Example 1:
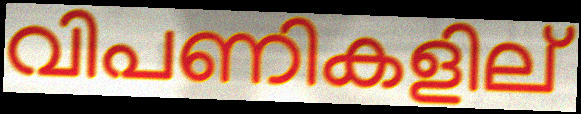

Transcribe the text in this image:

വിപണികളില്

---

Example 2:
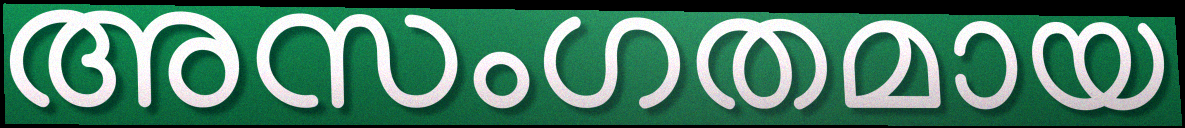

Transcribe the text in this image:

അസംഗതമായ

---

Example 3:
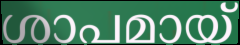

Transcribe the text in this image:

ശാപമായ്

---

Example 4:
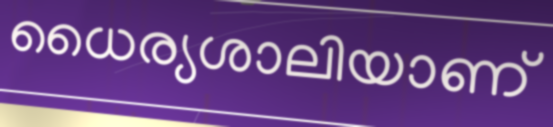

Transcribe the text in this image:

ധൈര്യശാലിയാണ്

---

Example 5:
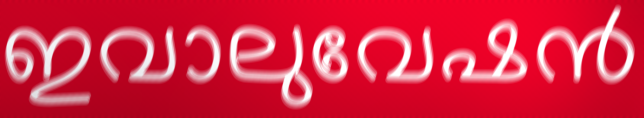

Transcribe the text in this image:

ഇവാലുവേഷൻ